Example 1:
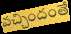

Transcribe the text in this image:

వచ్చిందంతే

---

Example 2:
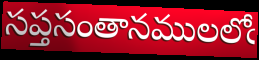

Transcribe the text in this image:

సప్తసంతానములలోఁ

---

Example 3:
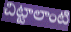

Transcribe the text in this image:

చిట్టాలాంటి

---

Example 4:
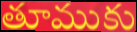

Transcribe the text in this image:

తూముకు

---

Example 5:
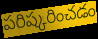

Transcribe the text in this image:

పరిష్కరించడం